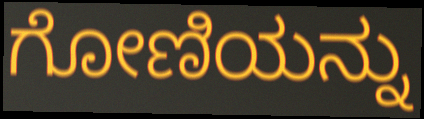
ಗೋಣಿಯನ್ನು